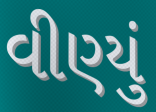
વીણ્યું